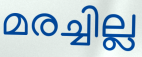
മരച്ചില്ല